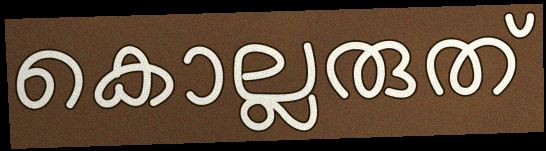
കൊല്ലരുത്